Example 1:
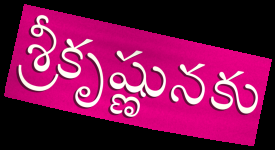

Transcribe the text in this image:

శ్రీకృష్ణునకు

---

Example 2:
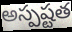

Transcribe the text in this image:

అస్పష్టత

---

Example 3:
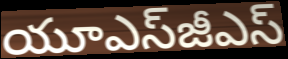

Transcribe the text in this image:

యూఎస్‌జీఎస్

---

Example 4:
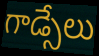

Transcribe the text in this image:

గాడ్సేలు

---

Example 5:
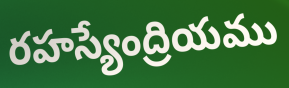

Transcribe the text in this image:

రహస్యేంద్రియము